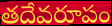
తదేవరూపం